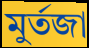
মুর্তজা